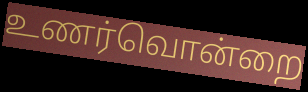
உணர்வொன்றை